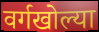
वर्गखोल्या